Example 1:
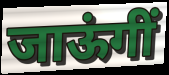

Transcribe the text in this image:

जाऊंगीं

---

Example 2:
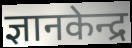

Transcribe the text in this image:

ज्ञानकेन्द्र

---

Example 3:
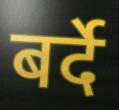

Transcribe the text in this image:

बर्दे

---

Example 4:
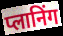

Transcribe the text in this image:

प्लानिंग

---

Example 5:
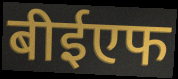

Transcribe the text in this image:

बीईएफ